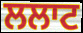
ਲਲਾਟ